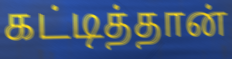
கட்டித்தான்